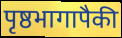
पृष्ठभागापैकी